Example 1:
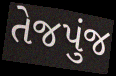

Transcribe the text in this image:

તેજપુંજ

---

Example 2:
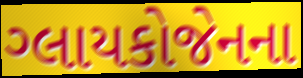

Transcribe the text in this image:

ગ્લાયકોજેનના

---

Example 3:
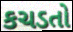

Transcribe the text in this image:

કચડતો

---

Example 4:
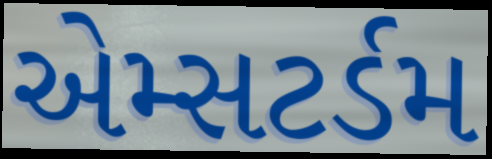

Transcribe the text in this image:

એમ્સટર્ડમ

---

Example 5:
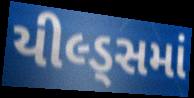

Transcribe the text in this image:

યીલ્ડ્સમાં